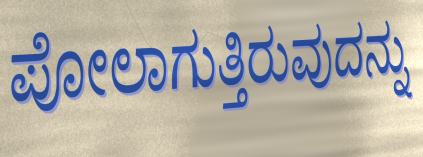
ಪೋಲಾಗುತ್ತಿರುವುದನ್ನು